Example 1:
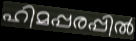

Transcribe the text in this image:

ഹിമപ്പരപ്പിൽ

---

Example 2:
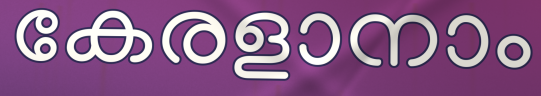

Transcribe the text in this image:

കേരളാനാം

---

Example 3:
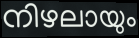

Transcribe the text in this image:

നിഴലായും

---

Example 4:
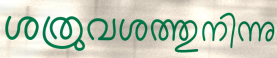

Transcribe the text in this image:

ശത്രുവശത്തുനിന്നു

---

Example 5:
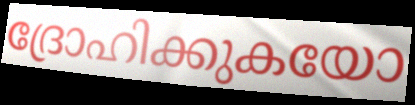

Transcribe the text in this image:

ദ്രോഹിക്കുകയോ